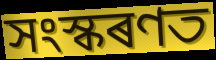
সংস্কৰণত